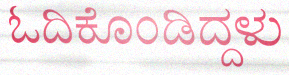
ಓದಿಕೊಂಡಿದ್ದಳು